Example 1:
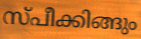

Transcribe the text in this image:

സ്പീക്കിങ്ങും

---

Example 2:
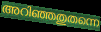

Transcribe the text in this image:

അറിഞ്ഞതുതന്നെ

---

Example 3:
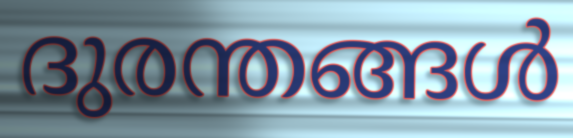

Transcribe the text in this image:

ദുരന്തങ്ങൾ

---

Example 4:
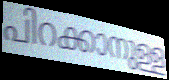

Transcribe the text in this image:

പിറക്കാനുള്ള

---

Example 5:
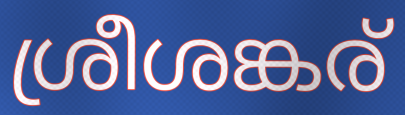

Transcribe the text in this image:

ശ്രീശങ്കര്